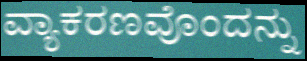
ವ್ಯಾಕರಣವೊಂದನ್ನು